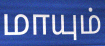
மாயும்